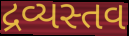
દ્રવ્યસ્તવ